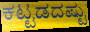
ಕಟ್ಟಡದಷ್ಟು